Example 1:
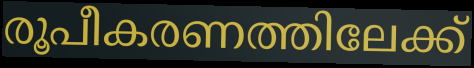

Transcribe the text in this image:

രൂപീകരണത്തിലേക്ക്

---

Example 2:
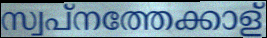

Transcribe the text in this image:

സ്വപ്നത്തേക്കാള്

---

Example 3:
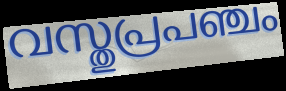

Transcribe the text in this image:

വസ്തുപ്രപഞ്ചം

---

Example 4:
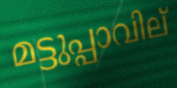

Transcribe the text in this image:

മട്ടുപ്പാവില്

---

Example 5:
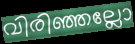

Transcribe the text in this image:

വിരിഞ്ഞല്ലോ